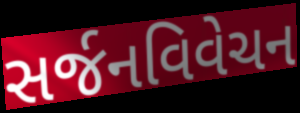
સર્જનવિવેચન